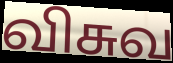
விசுவ